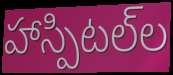
హాస్పిటల్‌ల